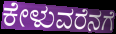
ಕೇಳುವರೆನಗೆ